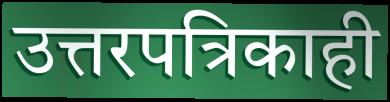
उत्तरपत्रिकाही